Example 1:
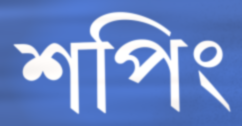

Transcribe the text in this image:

শপিং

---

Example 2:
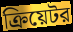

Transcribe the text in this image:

ক্রিয়েটর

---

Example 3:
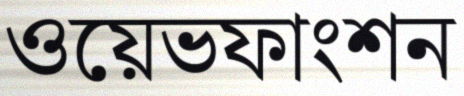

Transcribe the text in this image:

ওয়েভফাংশন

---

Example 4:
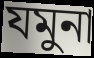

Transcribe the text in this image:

যমুনা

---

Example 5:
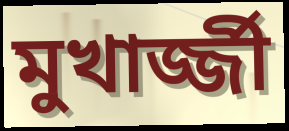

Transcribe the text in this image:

মুখার্জ্জী